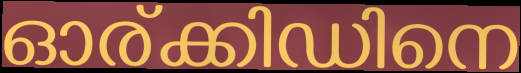
ഓര്ക്കിഡിനെ